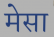
मेसा